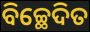
ବିଚ୍ଛେଦିତ